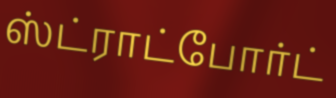
ஸ்ட்ராட்போர்ட்